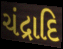
ચંદ્રાદિ